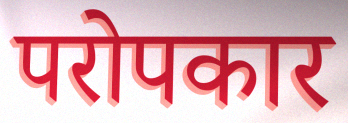
परोपकार